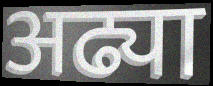
अढ्या